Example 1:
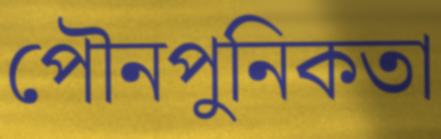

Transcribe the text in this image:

পৌনপুনিকতা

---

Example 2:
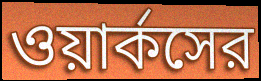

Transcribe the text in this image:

ওয়ার্কসের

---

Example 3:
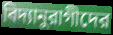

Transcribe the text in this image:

বিদ্যানুরাগীদের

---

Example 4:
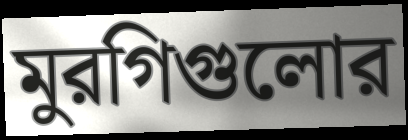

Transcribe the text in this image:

মুরগিগুলোর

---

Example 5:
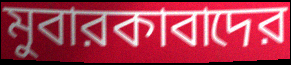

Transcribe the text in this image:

মুবারকাবাদের